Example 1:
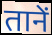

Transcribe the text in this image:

तानें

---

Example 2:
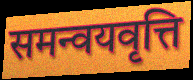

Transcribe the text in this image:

समन्वयवृत्ति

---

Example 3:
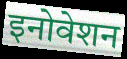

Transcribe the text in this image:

इनोवेशन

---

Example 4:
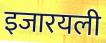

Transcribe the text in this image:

इजारयली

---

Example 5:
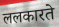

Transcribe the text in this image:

ललकारते